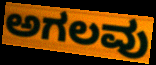
ಅಗಲವು